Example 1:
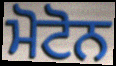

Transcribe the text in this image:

ਮੋਟੋਨ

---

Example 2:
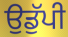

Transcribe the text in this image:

ਉਡੁੱਪੀ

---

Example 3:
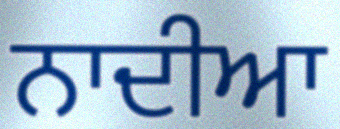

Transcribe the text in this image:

ਨਾਦੀਆ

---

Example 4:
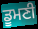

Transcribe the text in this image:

ਡੂਮਣੀ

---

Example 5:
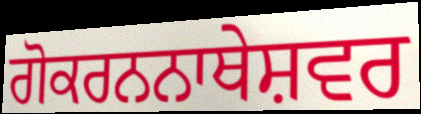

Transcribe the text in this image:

ਗੋਕਰਨਨਾਥੇਸ਼ਵਰ